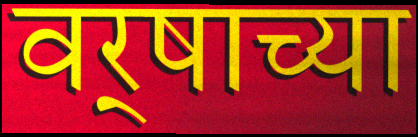
वर्षाच्या